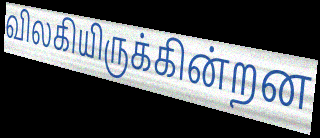
விலகியிருக்கின்றன